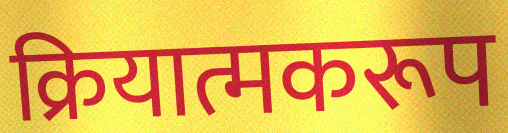
क्रियात्मकरूप